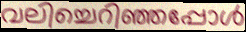
വലിച്ചെറിഞ്ഞപ്പോൾ